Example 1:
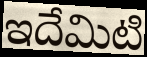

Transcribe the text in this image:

ఇదేమిటి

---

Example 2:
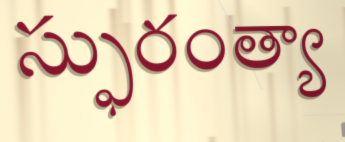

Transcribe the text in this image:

స్ఫురంత్యా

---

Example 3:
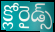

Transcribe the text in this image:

క్లోరైడ్స్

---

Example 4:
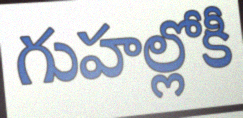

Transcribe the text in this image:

గుహల్లోకీ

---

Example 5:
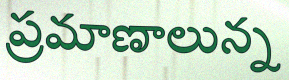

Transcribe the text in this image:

ప్రమాణాలున్న